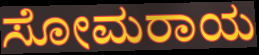
ಸೋಮರಾಯ